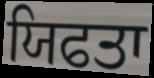
ਯਿਫਤਾ